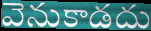
వెనుకాడదు